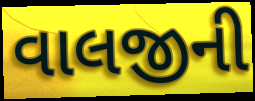
વાલજીની